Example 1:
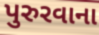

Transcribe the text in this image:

પુરુરવાના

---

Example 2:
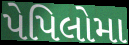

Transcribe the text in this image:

પેપિલોમા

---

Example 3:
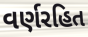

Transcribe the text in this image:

વર્ણરહિત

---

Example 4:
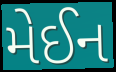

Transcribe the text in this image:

મેઈન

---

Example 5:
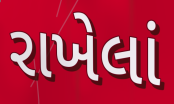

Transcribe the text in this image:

રાખેલાં